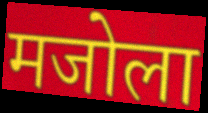
मजोला